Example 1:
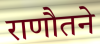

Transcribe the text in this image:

राणौतने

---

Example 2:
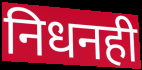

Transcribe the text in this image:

निधनही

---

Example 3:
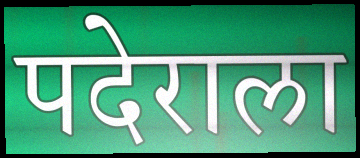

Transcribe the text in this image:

पदेराला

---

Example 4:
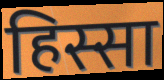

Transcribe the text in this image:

हिस्सा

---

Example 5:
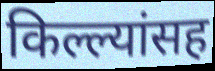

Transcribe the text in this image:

किल्ल्यांसह